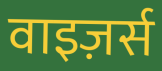
वाइज़र्स